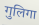
गुलिगा